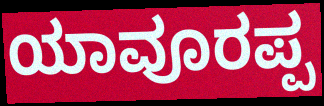
ಯಾವೂರಪ್ಪ